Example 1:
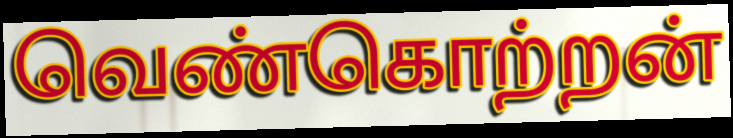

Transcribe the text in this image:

வெண்கொற்றன்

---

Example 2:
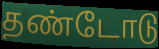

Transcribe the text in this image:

தண்டோடு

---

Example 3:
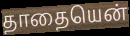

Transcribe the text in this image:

தாதையென்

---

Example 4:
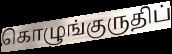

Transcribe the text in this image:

கொழுங்குருதிப்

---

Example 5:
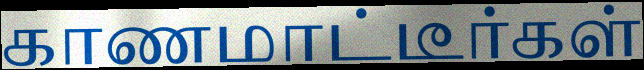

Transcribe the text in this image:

காணமாட்டீர்கள்